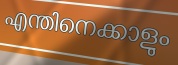
എന്തിനെക്കാളും